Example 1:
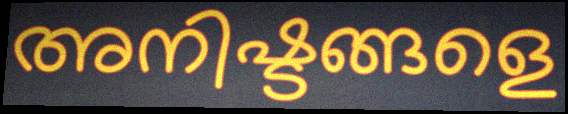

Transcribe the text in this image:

അനിഷ്ടങ്ങളെ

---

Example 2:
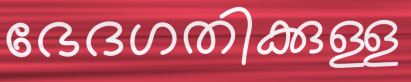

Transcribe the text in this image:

ഭേദഗതിക്കുള്ള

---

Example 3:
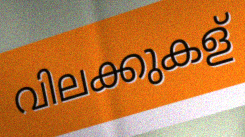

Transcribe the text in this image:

വിലക്കുകള്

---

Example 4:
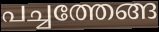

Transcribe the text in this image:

പച്ചത്തേങ്ങ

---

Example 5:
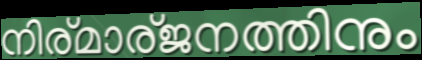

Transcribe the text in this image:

നിര്മാര്ജനത്തിനും